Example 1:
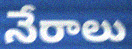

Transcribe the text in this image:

నేరాలు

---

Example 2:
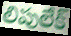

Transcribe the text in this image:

లిపులేక్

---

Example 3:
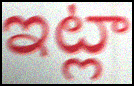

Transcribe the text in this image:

ఇట్లా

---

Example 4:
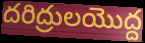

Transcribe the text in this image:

దరిద్రులయొద్ద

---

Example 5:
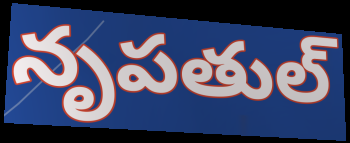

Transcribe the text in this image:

నృపతుల్